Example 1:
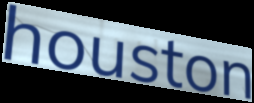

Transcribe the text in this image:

houston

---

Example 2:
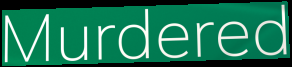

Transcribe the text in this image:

Murdered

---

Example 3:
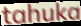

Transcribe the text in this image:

tahuka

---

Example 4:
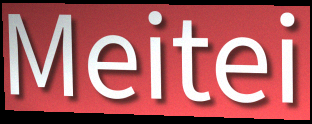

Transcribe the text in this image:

Meitei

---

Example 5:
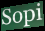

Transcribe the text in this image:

Sopi